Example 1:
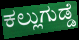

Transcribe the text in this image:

ಕಲ್ಲುಗುಡ್ಡೆ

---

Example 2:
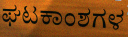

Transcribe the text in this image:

ಘಟಕಾಂಶಗಳ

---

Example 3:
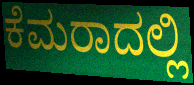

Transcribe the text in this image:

ಕೆಮರಾದಲ್ಲಿ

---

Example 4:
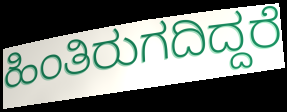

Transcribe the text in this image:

ಹಿಂತಿರುಗದಿದ್ದರೆ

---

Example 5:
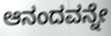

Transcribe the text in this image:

ಆನಂದವನ್ನೇ